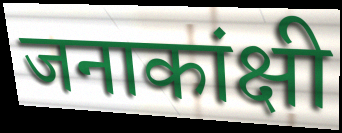
जनाकांक्षी